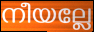
നീയല്ലേ